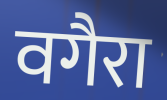
वगैरा